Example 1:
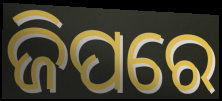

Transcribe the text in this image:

ଜିପରେ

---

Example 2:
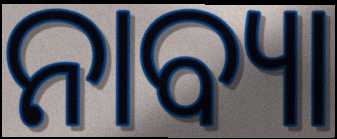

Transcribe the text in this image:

ନାବ୍ୟା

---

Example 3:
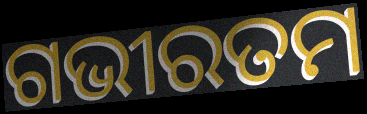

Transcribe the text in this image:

ଗଭୀରତମ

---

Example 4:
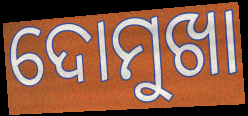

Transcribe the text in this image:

ଦୋମୁଖା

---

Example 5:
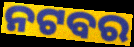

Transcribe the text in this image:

ନଟବର